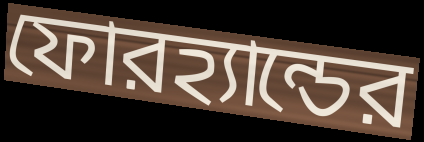
ফোরহ্যান্ডের